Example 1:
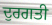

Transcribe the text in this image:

ਦੁਰਗਤੀ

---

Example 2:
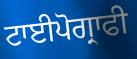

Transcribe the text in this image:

ਟਾਈਪੋਗ੍ਰਾਫੀ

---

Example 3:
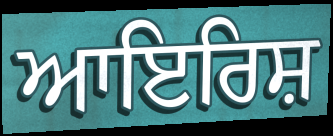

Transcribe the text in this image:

ਆਇਰਿਸ਼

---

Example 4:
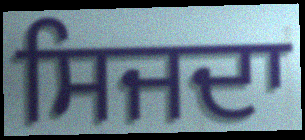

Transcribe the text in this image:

ਸਿਜਦਾ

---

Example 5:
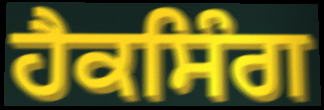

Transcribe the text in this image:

ਹੈਕਸਿੰਗ